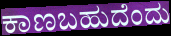
ಕಾಣಬಹುದೆಂದು